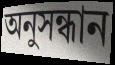
অনুসন্ধান